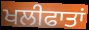
ਖਲੀਫਾਤਾਂ